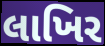
લાખિર